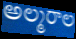
అల్మరాల